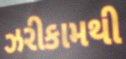
ઝરીકામથી